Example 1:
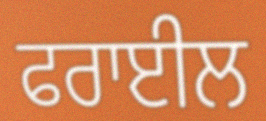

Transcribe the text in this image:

ਫਰਾਈਲ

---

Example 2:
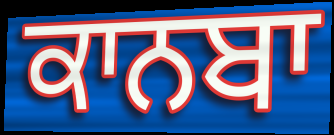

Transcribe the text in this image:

ਕਾਨਬਾ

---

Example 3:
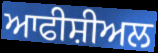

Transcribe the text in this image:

ਆਫੀਸ਼ੀਅਲ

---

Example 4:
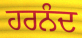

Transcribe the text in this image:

ਹਰਨੰਦ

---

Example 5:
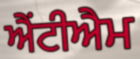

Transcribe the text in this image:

ਐਂਟੀਐਮ